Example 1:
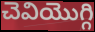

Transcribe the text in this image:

చెవియొగ్గి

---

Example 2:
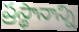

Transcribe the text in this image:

ప్రస్థానాన్ని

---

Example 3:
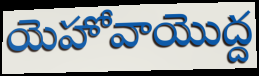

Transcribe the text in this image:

యెహోవాయొద్ద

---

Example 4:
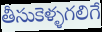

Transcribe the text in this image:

తీసుకెళ్ళగలిగే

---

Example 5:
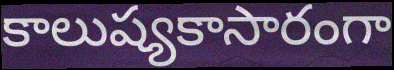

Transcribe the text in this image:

కాలుష్యకాసారంగా